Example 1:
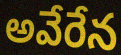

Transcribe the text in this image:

అవేరేన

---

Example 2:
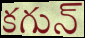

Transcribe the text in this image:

కగున్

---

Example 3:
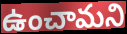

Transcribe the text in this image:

ఉంచామని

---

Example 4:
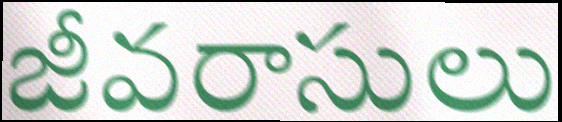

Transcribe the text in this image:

జీవరాసులు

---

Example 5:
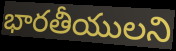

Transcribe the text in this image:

భారతీయులని